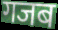
गजब